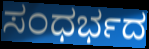
ಸಂಧರ್ಭದ